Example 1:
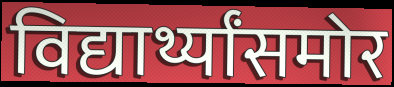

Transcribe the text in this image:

विद्यार्थ्यांसमोर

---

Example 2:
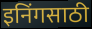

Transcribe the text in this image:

इनिंगसाठी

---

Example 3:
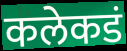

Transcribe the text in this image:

कलेकडं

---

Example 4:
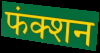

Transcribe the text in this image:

फंक्शन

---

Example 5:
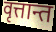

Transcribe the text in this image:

वृत्तान्त